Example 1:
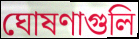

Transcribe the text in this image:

ঘোষণাগুলি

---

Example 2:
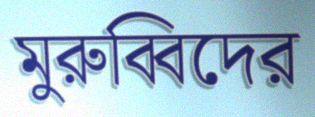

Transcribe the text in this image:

মুরুব্বিদের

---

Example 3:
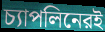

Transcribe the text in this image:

চ্যাপলিনেরই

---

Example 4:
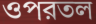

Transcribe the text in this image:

ওপরতল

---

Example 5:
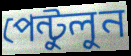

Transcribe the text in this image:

পেন্টুলুন